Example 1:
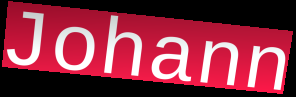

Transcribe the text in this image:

Johann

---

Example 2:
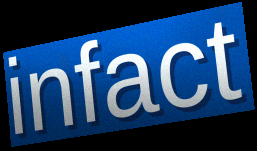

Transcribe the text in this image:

infact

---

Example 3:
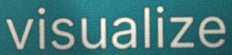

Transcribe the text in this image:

visualize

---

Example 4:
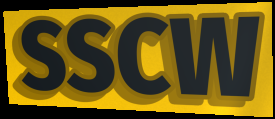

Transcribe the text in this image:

SSCW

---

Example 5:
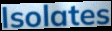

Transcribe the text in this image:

Isolates